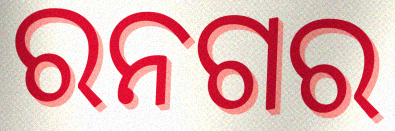
ରନଗର